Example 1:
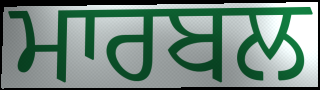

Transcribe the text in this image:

ਮਾਰਬਲ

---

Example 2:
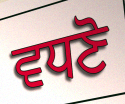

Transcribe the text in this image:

ਵਧਣੋ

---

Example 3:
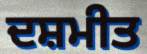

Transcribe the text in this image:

ਦਸ਼ਮੀਤ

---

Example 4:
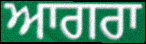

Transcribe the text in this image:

ਆਗਰਾ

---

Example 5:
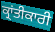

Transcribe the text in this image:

ਕ੍ਰਾਂਤੀਕਾਰੀ